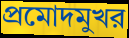
প্রমোদমুখর